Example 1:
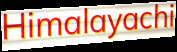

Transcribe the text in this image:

Himalayachi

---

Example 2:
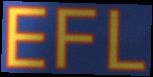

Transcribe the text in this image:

EFL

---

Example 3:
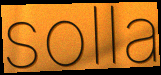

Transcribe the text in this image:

solla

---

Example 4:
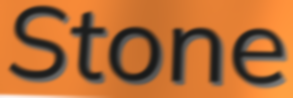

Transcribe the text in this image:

Stone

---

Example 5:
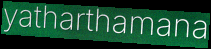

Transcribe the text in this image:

yatharthamana